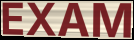
EXAM